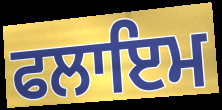
ਫਲਾਇਮ